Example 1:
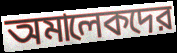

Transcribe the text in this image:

অমালেকদের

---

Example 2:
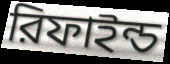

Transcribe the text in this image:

রিফাইন্ড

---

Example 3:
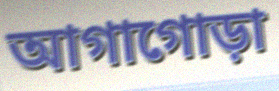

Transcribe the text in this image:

আগাগোড়া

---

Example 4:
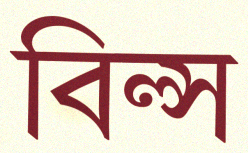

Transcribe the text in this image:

বিল্স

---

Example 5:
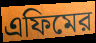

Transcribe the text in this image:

এফিমের